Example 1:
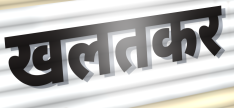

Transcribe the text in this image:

खलतकर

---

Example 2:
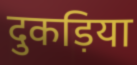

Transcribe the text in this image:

दुकड़िया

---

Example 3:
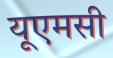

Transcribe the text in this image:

यूएमसी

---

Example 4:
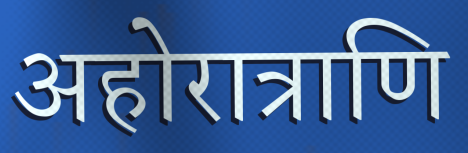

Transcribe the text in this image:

अहोरात्राणि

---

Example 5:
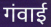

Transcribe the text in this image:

गंवाई